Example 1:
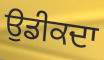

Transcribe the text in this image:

ਉਡੀਕਦਾ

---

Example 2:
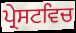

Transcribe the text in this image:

ਪ੍ਰੇਸਟਵਿਚ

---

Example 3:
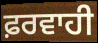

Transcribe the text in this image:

ਫ਼ਰਵਾਹੀ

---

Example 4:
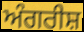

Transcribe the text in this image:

ਅੰਗਰੀਸ਼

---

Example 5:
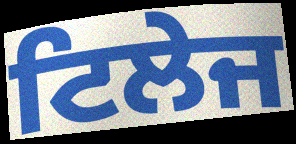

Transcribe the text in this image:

ਟਿਲੇਜ